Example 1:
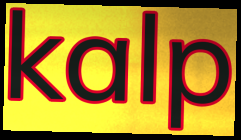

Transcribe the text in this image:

kalp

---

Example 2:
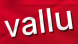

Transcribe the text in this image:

vallu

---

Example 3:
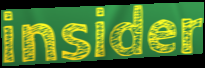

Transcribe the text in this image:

insider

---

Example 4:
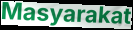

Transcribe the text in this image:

Masyarakat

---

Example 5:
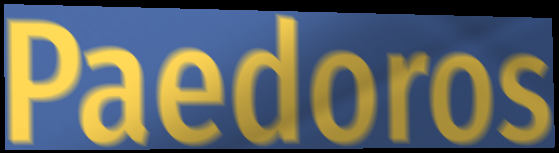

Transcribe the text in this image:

Paedoros